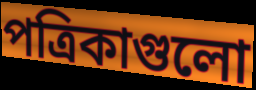
পত্রিকাগুলো